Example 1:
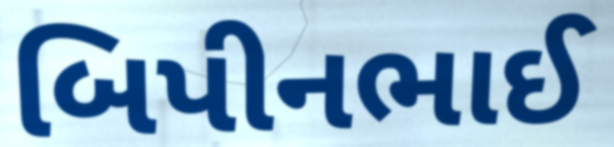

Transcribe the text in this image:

બિપીનભાઈ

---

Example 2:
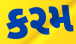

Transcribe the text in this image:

કરમ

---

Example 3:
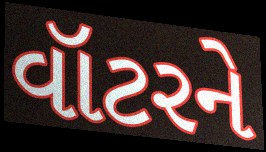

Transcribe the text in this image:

વૉટરને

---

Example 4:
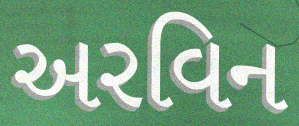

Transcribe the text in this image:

અરવિન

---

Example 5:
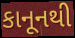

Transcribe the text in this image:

કાનૂનથી